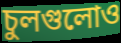
চুলগুলোও